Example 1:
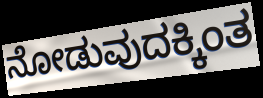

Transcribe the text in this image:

ನೋಡುವುದಕ್ಕಿಂತ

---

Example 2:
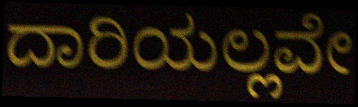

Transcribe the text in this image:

ದಾರಿಯಲ್ಲವೇ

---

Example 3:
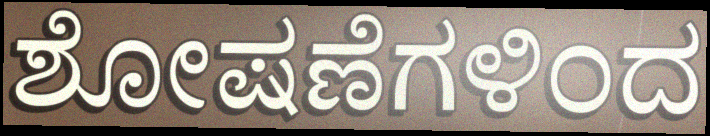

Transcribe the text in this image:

ಶೋಷಣೆಗಳಿಂದ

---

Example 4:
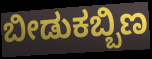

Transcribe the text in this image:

ಬೀಡುಕಬ್ಬಿಣ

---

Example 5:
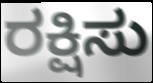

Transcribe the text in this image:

ರಕ್ಷಿಸು